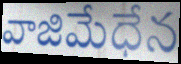
వాజిమేధేన